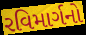
રવિમાર્ગનો